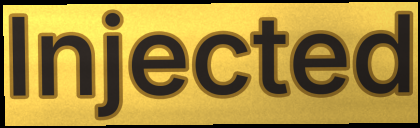
Injected